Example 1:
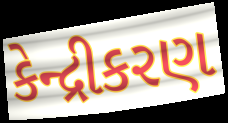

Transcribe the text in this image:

કેન્દ્રીકરણ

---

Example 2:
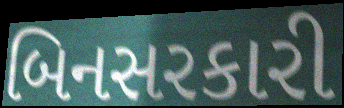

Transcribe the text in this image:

બિનસરકારી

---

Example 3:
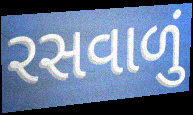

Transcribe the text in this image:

રસવાળું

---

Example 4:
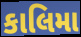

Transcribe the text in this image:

કાલિમા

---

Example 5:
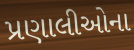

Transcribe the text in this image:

પ્રણાલીઓના